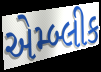
એમ્બ્લીક